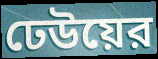
ঢেউয়ের